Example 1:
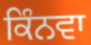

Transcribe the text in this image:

ਕਿੰਨਵਾ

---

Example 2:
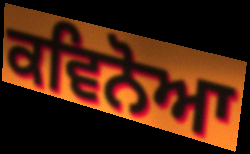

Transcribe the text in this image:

ਕਵਿਨੋਆ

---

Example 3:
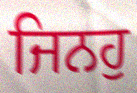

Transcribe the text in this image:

ਜਿਨਹੁ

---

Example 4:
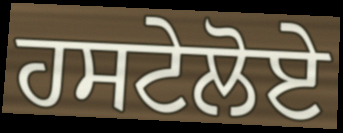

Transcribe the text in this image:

ਹਸਟੇਲੋਏ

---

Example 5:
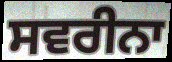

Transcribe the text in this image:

ਸਵਰੀਨਾ